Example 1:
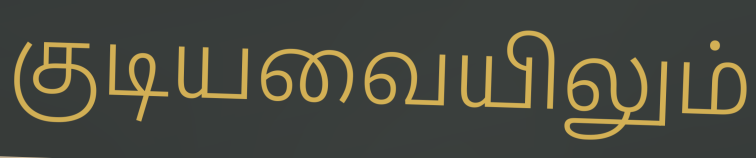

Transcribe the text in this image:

குடியவையிலும்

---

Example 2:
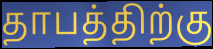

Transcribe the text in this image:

தாபத்திற்கு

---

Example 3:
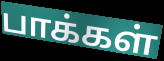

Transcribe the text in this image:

பாக்கள்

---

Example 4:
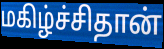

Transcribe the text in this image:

மகிழ்ச்சிதான்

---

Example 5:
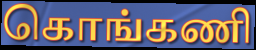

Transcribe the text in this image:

கொங்கணி